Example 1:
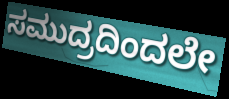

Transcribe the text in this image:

ಸಮುದ್ರದಿಂದಲೇ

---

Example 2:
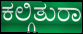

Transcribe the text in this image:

ಕಲ್ಗಿತುರಾ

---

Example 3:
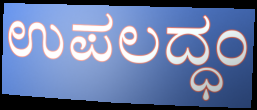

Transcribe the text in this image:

ಉಪಲದ್ಧಂ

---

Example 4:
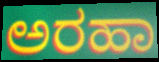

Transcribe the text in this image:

ಅರಹಾ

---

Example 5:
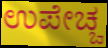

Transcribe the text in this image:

ಉಪೇಚ್ಚ